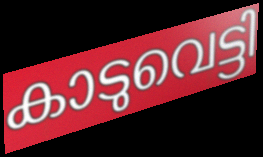
കാടുവെട്ടി